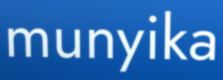
munyika